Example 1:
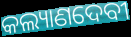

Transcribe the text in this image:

କଲ୍ୟାଣଦେବୀ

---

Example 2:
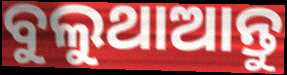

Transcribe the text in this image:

ବୁଲୁଥାଆନ୍ତୁ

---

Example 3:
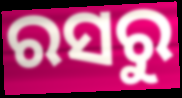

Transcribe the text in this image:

ରସରୁ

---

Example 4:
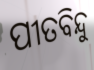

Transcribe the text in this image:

ପୀତବିନ୍ଦୁ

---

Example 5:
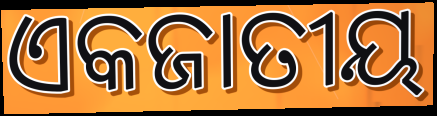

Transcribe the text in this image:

ଏକଜାତୀୟ